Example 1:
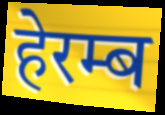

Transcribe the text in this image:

हेरम्ब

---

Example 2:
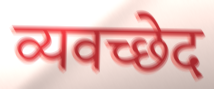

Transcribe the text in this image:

व्यवच्छेद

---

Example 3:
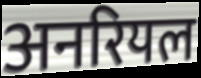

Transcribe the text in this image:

अनरियल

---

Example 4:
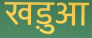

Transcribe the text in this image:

खड़ुआ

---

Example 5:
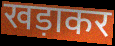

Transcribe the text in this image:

खड़ाकर